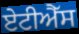
ਏਟੀਐੱਸ